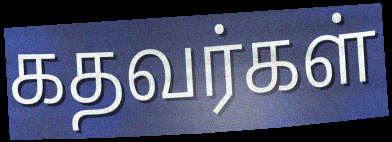
கதவர்கள்